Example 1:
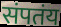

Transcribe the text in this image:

संपतंय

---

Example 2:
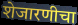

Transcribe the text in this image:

शेजारणीचा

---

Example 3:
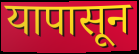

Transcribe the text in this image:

यापासून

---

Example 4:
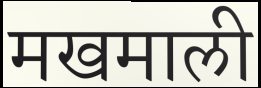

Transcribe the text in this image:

मखमाली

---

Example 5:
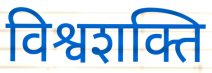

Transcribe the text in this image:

विश्वशक्ति